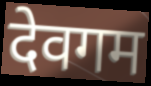
देवगम